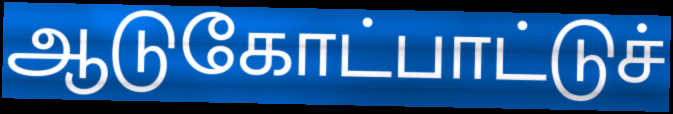
ஆடுகோட்பாட்டுச்